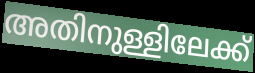
അതിനുള്ളിലേക്ക്